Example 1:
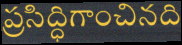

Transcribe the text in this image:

ప్రసిద్ధిగాంచినది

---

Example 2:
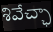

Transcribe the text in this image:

శివేచ్ఛా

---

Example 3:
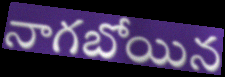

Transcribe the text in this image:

నాగబోయిన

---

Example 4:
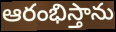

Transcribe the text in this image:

ఆరంభిస్తాను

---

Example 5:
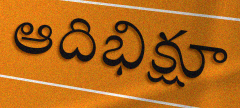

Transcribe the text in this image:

ఆదిభిక్షూ